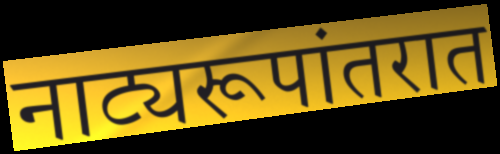
नाट्यरूपांतरात